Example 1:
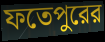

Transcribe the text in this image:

ফতেপুরের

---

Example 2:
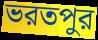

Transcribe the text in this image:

ভরতপুর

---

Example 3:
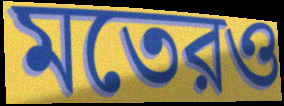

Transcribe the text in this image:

মতেরও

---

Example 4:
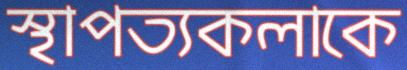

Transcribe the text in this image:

স্থাপত্যকলাকে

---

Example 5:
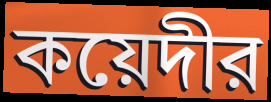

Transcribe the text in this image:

কয়েদীর